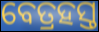
ବେତ୍ରହସ୍ତ